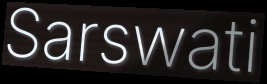
Sarswati